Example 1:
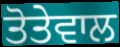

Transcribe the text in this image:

ਤੋਤੇਵਾਲ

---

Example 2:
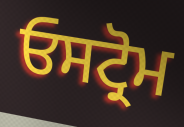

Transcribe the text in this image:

ਓਸਟ੍ਰੋਮ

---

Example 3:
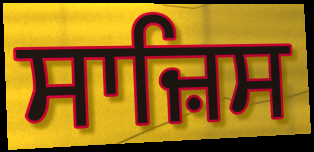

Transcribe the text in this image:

ਸਾਜ਼ਿਸ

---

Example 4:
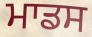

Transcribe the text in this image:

ਮਾਡਸ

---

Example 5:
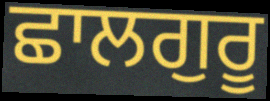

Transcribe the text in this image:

ਛਾਲਗੁਰੂ